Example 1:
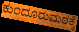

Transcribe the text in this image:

ಕುಂದೂರುಮಠಕ್ಕೆ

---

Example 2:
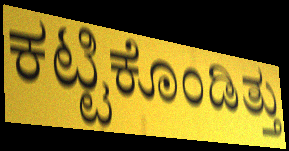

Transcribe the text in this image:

ಕಟ್ಟಿಕೊಂಡಿತ್ತು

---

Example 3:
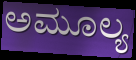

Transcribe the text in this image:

ಅಮೂಲ್ಯ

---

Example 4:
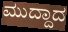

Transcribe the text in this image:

ಮುದ್ದಾದ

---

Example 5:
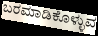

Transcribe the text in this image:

ಬರಮಾಡಿಕೊಳ್ಳುವ